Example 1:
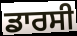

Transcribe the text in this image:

ਡਾਰਸੀ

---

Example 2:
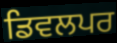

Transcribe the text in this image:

ਡਿਵਲਪਰ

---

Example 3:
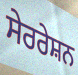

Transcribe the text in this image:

ਸੇਰਰੇਸ਼ਨ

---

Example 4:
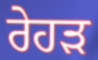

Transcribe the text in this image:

ਰੇਹੜ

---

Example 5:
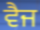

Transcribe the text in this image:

ਵੈਜ